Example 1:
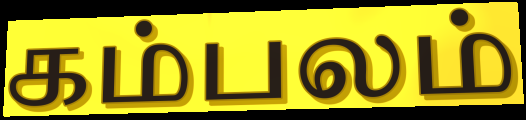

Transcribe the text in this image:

கம்பலம்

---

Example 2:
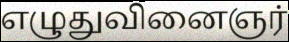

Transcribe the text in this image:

எழுதுவினைஞர்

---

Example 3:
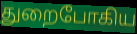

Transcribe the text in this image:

துறைபோகிய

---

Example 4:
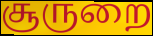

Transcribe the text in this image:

சூருறை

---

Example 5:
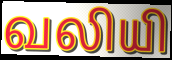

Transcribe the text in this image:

வலியி